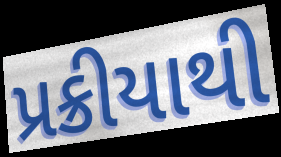
પ્રક્રીયાથી